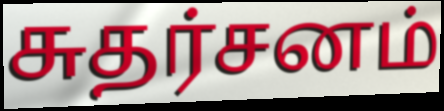
சுதர்சனம்